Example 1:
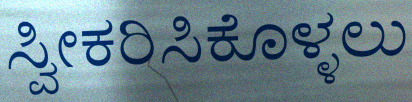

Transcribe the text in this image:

ಸ್ವೀಕರಿಸಿಕೊಳ್ಳಲು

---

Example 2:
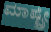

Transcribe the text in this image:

ಮಾಷ್ಟ್ರೇ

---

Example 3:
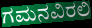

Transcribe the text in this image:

ಗಮನವಿರಲಿ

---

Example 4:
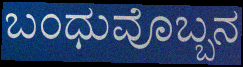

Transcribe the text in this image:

ಬಂಧುವೊಬ್ಬನ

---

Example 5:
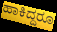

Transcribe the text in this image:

ಹಾಕಿದ್ದರೂ